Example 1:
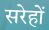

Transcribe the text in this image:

सरेहों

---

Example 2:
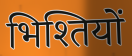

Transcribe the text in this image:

भिश्तियों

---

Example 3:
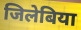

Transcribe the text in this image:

जिलेबिया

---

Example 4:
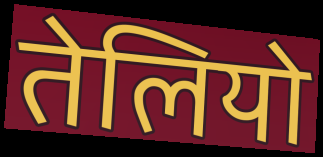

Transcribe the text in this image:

तेलियो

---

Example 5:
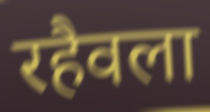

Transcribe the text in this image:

रहैवला